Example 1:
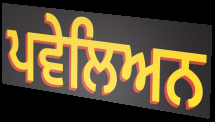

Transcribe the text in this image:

ਪਵੇਲਿਅਨ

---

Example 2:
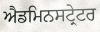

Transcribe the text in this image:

ਐਡਮਿਨਸਟ੍ਰੇਟਰ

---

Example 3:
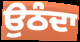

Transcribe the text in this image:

ਉਠੰਦਾ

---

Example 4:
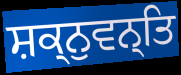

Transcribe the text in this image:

ਸ਼ਕ੍ਨੁਵਨ੍ਤਿ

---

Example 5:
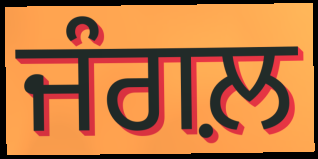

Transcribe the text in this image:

ਜੰਗਲ਼